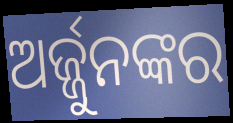
ଅର୍ଜ୍ଜୁନଙ୍କର